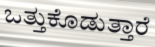
ಒತ್ತುಕೊಡುತ್ತಾರೆ